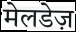
मेलडेज़